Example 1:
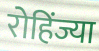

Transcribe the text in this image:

रोहिंज्या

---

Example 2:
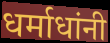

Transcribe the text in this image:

धर्माधांनी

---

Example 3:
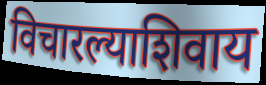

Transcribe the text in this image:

विचारल्याशिवाय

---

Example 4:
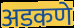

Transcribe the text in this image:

अडकणे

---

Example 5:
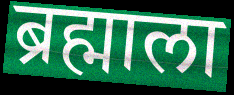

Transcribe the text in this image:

ब्रह्माला